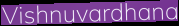
Vishnuvardhana